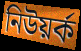
নিউয়ৰ্ক